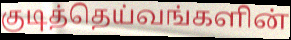
குடித்தெய்வங்களின்